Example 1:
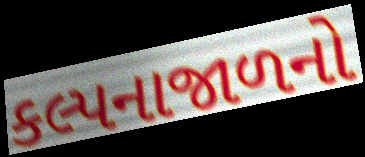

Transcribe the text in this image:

કલ્પનાજાળનો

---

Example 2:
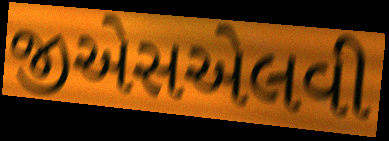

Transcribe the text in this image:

જીએસએલવી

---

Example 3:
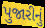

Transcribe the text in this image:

પુજારીનું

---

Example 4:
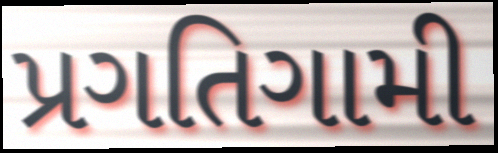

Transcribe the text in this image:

પ્રગતિગામી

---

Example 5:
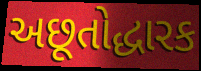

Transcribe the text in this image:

અછૂતોદ્ધારક